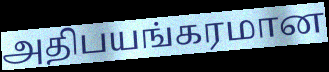
அதிபயங்கரமான